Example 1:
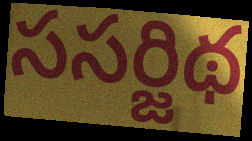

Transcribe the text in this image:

ససర్జిథ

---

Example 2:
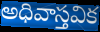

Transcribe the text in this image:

అధివాస్తవిక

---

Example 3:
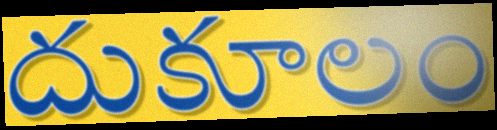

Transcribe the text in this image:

దుకూలం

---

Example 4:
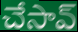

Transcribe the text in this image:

చేసావ్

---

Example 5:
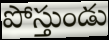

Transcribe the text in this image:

పోస్తుండు